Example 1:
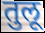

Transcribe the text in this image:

तुलू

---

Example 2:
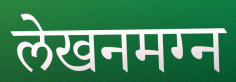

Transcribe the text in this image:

लेखनमग्न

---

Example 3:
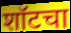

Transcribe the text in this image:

शॉटचा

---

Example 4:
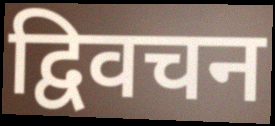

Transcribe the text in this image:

द्विवचन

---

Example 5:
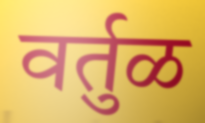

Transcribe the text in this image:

वर्तुळ